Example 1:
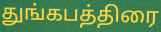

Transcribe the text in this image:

துங்கபத்திரை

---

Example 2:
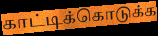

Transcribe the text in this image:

காட்டிக்கொடுக்க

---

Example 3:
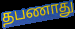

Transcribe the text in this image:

தபணாது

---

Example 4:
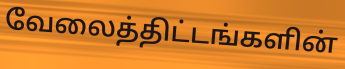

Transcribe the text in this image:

வேலைத்திட்டங்களின்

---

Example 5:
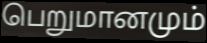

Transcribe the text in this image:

பெறுமானமும்